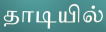
தாடியில்